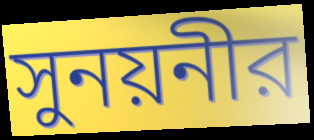
সুনয়নীর